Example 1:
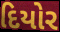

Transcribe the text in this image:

દિયોર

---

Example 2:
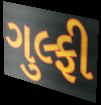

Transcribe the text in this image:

ગુલ્ફી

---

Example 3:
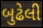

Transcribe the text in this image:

બુઢેલી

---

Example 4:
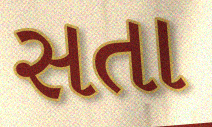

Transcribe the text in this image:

સતા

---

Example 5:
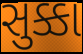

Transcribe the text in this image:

સુક્કા